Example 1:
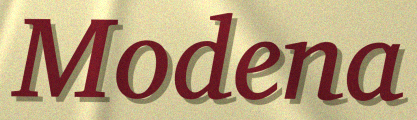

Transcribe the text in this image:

Modena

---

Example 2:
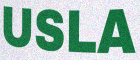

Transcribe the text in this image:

USLA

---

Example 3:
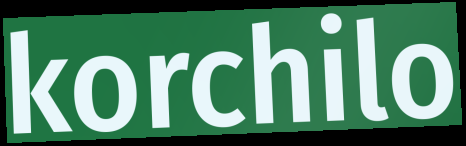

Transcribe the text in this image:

korchilo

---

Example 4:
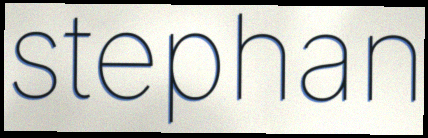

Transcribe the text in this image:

stephan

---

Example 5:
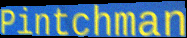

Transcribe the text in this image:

Pintchman